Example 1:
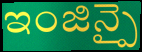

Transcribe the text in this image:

ఇంజిన్పై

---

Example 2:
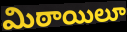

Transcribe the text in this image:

మిఠాయిలూ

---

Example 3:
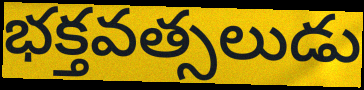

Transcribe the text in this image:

భక్తవత్సలుడు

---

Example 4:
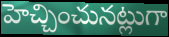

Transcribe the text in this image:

హెచ్చించునట్లుగా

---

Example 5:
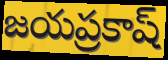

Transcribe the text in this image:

జయప్రకాష్